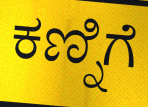
ಕಣ್ನಿಗೆ